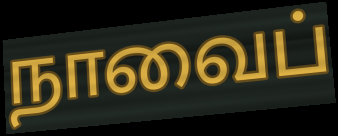
நாவைப்